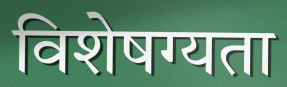
विशेषग्यता